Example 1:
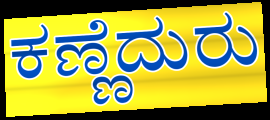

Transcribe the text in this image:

ಕಣ್ಣೆದುರು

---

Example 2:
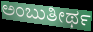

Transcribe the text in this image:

ಅಂಬುತೀರ್ಥ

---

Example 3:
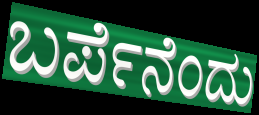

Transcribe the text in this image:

ಬರ್ಪೆನೆಂದು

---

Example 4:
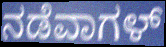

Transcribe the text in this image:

ನಡೆವಾಗಳ್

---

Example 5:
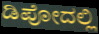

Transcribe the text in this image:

ಡಿಪೋದಲ್ಲಿ